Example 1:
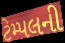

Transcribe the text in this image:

ટેમ્પલની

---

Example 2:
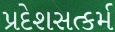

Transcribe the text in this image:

પ્રદેશસત્કર્મ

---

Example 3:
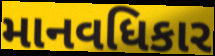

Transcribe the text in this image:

માનવધિકાર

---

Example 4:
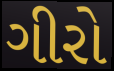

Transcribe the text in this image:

ગીરો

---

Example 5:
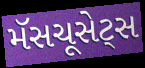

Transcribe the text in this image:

મૅસચૂસેટ્સ